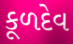
કૂળદેવ